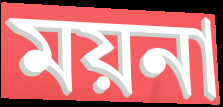
ময়না